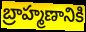
బ్రాహ్మణానికి